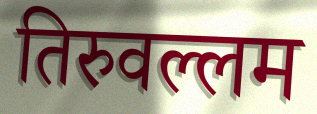
तिरुवल्लम